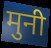
मुनी